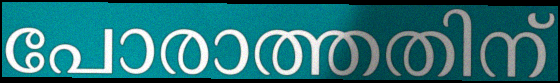
പോരാത്തതിന്